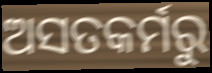
ଅସତକର୍ମରୁ